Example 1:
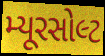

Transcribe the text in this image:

મ્યૂરસોલ્ટ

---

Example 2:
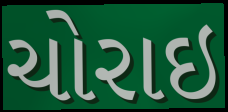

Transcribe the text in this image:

ચોરાઇ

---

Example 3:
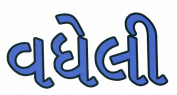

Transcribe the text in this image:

વધેલી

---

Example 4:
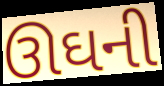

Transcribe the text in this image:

ઊઘની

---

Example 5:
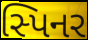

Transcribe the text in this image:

સ્પિનર